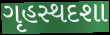
ગૃહસ્થદશા